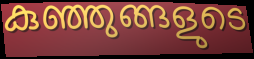
കുഞ്ഞുങ്ങളുടെ